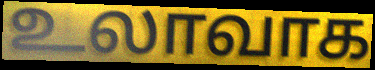
உலாவாக